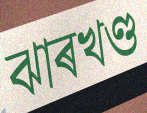
ঝাৰখণ্ড